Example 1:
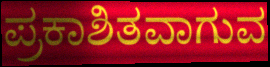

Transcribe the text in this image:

ಪ್ರಕಾಶಿತವಾಗುವ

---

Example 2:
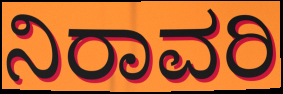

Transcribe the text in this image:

ನಿರಾವರಿ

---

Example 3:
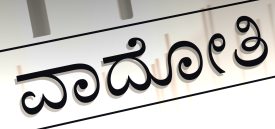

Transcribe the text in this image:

ವಾದೋತಿ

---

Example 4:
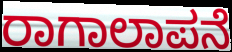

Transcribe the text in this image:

ರಾಗಾಲಾಪನೆ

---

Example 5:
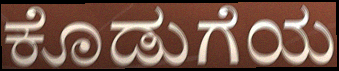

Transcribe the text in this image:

ಕೊಡುಗೆಯ